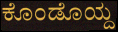
ಕೊಂಡೊಯ್ದ